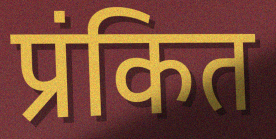
प्रंकित